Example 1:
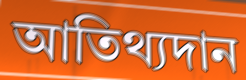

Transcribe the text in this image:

আতিথ্যদান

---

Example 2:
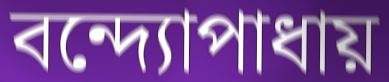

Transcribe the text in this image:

বন্দ্যোপাধায়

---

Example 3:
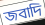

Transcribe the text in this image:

জবাদি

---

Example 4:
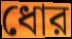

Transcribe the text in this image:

ধোর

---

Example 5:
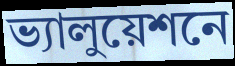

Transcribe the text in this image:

ভ্যালুয়েশনে